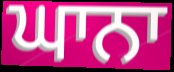
ਘਾਨਾ